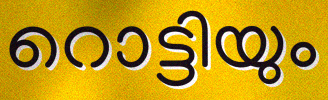
റൊട്ടിയും